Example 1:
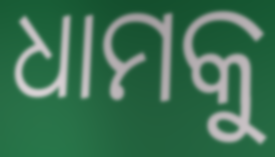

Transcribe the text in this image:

ଧାମକୁ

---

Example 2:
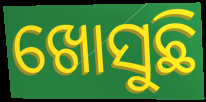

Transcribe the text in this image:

ଖୋସୁଛି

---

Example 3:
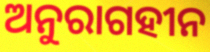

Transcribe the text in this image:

ଅନୁରାଗହୀନ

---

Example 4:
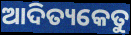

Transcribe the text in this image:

ଆଦିତ୍ୟକେତୁ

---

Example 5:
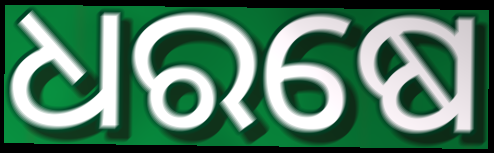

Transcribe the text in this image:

ଧରଷେ